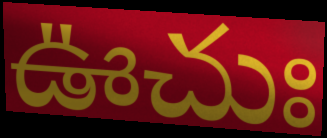
ఊచుః